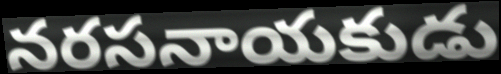
నరసనాయకుడు